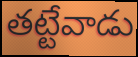
తట్టేవాడు